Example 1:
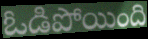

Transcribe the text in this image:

ఓడిపోయింది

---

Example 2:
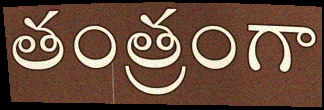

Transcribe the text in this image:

తంత్రంగా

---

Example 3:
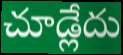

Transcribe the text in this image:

చూడ్లేదు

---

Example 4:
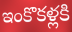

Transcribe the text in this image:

ఇంకొకళ్లకి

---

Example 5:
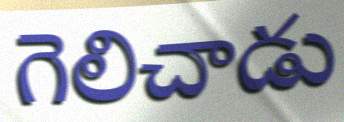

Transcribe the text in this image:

గెలిచాడు